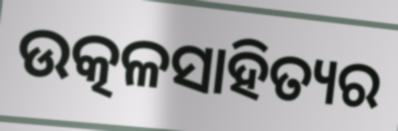
ଉତ୍କଳସାହିତ୍ୟର